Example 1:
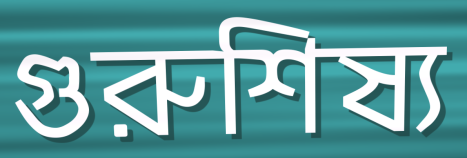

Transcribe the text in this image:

গুরুশিষ্য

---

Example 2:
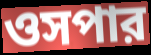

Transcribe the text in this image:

ওসপার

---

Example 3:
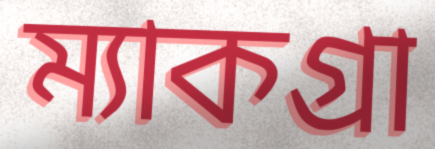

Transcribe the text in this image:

ম্যাকগ্রা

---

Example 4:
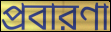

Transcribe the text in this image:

প্রবারণা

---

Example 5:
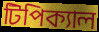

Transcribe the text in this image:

টিপিক্যাল